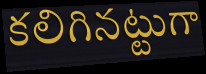
కలిగినట్టుగా